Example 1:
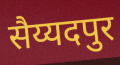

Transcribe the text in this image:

सैय्यदपुर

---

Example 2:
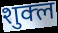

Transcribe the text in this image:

शुक्‍ल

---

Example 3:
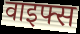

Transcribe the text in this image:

वाइफ्स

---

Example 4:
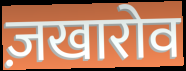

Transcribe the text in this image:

ज़खारोव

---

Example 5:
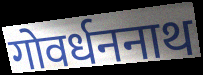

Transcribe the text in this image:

गोवर्धननाथ